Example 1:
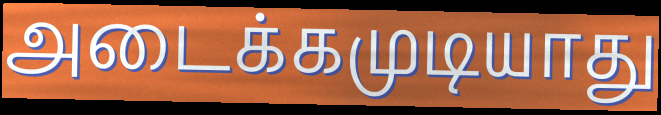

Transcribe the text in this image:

அடைக்கமுடியாது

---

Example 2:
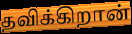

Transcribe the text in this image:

தவிக்கிறான்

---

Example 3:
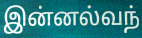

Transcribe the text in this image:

இன்னல்வந்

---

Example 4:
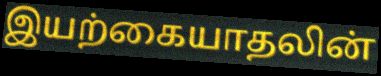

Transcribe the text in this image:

இயற்கையாதலின்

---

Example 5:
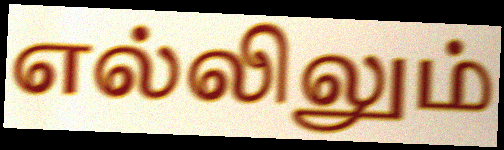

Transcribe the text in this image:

எல்லிலும்